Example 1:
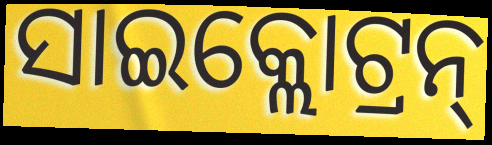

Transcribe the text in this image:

ସାଇକ୍ଲୋଟ୍ରନ୍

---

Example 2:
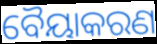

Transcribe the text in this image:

ବୈୟାକରଣ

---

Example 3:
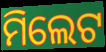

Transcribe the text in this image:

ମିଲେଟ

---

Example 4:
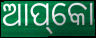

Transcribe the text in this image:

ଆପ୍‌କୋ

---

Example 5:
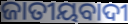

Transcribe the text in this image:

ଜାତୀୟବାଦୀ